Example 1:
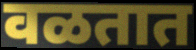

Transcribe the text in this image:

वळतात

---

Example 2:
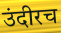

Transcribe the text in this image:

उंदीरच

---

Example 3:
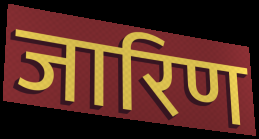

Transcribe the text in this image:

जारिण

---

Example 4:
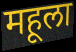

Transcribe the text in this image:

महूला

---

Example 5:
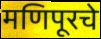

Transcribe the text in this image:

मणिपूरचे